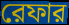
রেফার